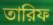
তারিফ